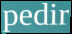
pedir